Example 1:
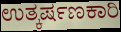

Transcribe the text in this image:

ಉತ್ಕರ್ಷಣಕಾರಿ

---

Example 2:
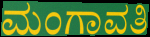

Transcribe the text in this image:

ಮಂಗಾವತಿ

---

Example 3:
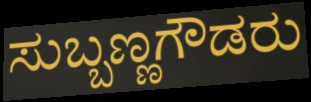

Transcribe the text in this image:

ಸುಬ್ಬಣ್ಣಗೌಡರು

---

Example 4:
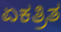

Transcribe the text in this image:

ಏಕತ್ರಿತ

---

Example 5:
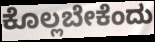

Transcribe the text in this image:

ಕೊಲ್ಲಬೇಕೆಂದು